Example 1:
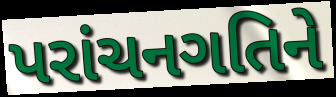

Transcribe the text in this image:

પરાંચનગતિને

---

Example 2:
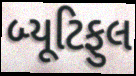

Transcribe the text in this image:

બ્યૂટિફુલ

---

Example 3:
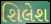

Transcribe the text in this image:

શિલેશ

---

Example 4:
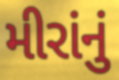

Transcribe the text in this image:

મીરાંનું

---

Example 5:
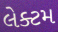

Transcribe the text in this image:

લેક્ટમ